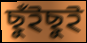
ছুঁইছুই